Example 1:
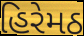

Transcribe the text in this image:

હિરેમઠ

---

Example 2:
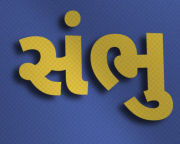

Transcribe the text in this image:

સંભુ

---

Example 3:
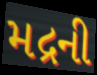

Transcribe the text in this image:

મદ્રની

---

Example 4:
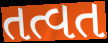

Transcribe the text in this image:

તત્વત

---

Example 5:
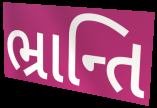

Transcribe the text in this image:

ભ્રાન્તિ